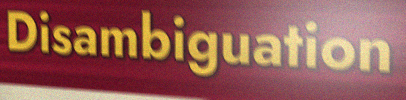
Disambiguation